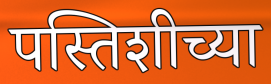
पस्तिशीच्या